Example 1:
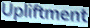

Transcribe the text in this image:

Upliftment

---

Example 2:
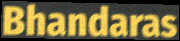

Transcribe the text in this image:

Bhandaras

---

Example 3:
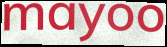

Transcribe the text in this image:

mayoo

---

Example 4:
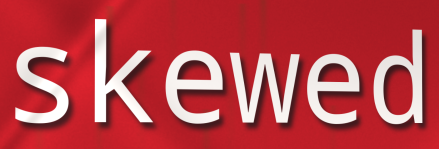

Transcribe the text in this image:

skewed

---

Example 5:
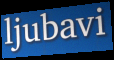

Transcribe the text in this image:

ljubavi